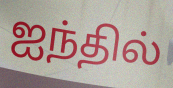
ஐந்தில்